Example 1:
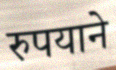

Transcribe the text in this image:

रुपयाने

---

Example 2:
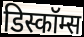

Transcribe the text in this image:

डिस्कॉम्स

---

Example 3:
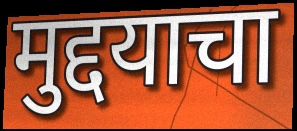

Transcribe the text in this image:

मुद्दयाचा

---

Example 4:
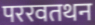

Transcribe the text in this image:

पररवतथन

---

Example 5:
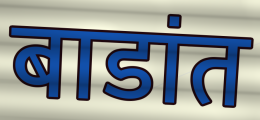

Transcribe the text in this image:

बाडांत